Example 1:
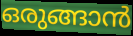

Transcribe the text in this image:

ഒരുങ്ങാൻ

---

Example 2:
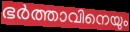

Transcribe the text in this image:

ഭർത്താവിനെയും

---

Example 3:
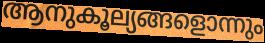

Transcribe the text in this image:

ആനുകൂല്യങ്ങളൊന്നും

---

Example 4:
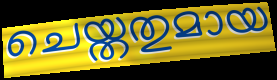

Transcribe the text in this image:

ചെയ്തതുമായ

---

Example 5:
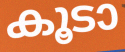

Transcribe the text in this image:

കൂടാ